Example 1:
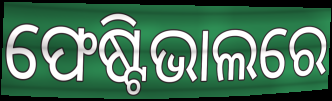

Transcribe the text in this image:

ଫେଷ୍ଟିଭାଲରେ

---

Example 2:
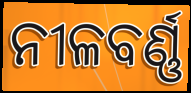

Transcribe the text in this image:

ନୀଳବର୍ଣ୍ଣ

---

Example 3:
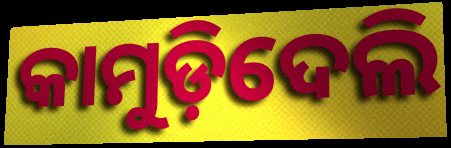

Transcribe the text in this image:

କାମୁଡ଼ିଦେଲି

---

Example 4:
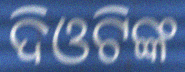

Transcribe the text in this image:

ଦିଓଟିଙ୍କ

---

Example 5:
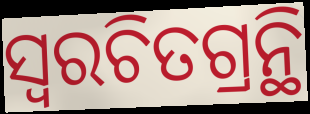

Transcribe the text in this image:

ସ୍ଵରଚିତଗ୍ରନ୍ଥି